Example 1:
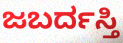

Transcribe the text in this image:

ಜಬರ್ದಸ್ತಿ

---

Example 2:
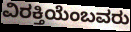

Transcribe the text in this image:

ವಿರಕ್ತಿಯೆಂಬವರು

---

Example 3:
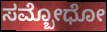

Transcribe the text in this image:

ಸಮ್ಬೋಧೋ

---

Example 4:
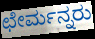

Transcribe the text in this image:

ಛೇರ್ಮನ್ನರು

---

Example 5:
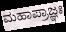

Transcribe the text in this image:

ಮಹಾಪ್ರಾಜ್ಞಃ